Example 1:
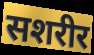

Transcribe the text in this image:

सशरीर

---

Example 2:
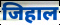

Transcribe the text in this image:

जिहाल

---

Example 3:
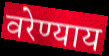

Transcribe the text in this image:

वरेण्याय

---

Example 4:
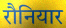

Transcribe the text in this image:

रौनियार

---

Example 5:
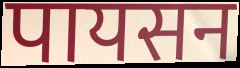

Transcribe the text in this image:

पायसन